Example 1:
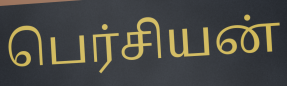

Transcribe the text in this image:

பெர்சியன்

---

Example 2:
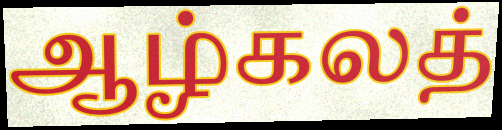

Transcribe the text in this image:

ஆழ்கலத்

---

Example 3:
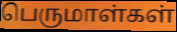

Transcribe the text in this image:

பெருமாள்கள்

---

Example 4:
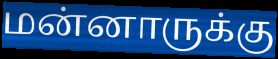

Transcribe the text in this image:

மன்னாருக்கு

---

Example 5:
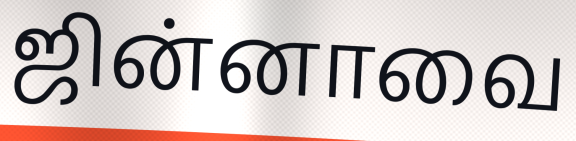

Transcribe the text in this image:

ஜின்னாவை